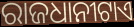
ରାଜଧାନୀଟାଏ